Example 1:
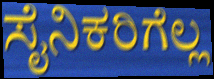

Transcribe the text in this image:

ಸೈನಿಕರಿಗೆಲ್ಲ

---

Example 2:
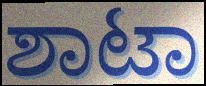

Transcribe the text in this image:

ಶಾಟಾ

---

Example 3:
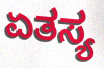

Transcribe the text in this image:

ಏತಸ್ಯ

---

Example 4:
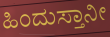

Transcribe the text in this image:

ಹಿಂದುಸ್ತಾನೀ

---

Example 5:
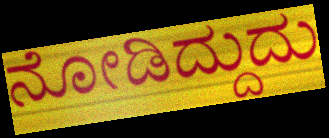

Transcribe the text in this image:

ನೋಡಿದ್ದುದು